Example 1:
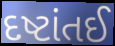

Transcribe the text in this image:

દષ્ટાંતઈ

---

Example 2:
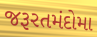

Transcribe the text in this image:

જરૂરતમંદોમા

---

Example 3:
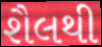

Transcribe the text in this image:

શૈલથી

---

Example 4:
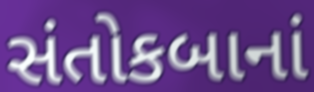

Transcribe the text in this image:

સંતોકબાનાં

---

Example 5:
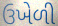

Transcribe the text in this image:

ઉખેળી